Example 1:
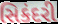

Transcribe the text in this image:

સિકંદરી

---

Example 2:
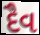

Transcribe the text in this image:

દૈવ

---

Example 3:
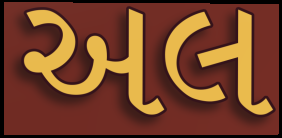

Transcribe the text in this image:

અલ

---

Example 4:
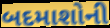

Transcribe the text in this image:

બદમાશોની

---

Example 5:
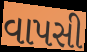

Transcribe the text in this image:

વાપસી